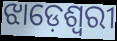
ଝାଡ଼େଶ୍ୱରୀ